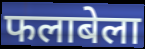
फलाबेला